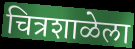
चित्रशाळेला